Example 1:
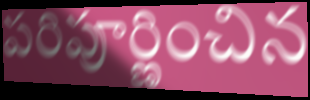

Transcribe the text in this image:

పరిపూర్ణించిన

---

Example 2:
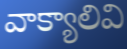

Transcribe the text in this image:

వాక్యాలివి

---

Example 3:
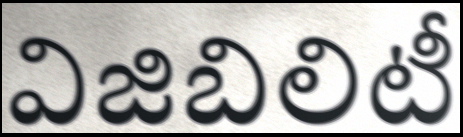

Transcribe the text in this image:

విజిబిలిటీ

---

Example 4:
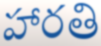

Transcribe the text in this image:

హారతి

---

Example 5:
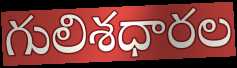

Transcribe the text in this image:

గులిశధారల